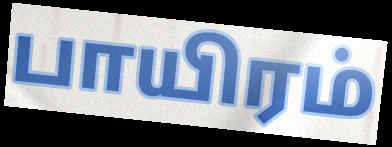
பாயிரம்